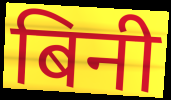
बिनी